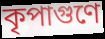
কৃপাগুণে